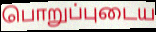
பொறுப்புடைய